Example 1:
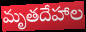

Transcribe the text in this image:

మృతదేహాల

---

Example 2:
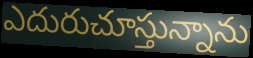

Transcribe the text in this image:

ఎదురుచూస్తున్నాను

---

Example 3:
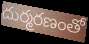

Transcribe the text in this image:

దుర్మరణంతో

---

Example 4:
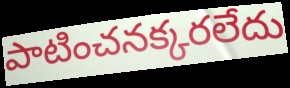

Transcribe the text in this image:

పాటించనక్కరలేదు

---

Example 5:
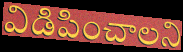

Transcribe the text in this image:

విడిపించాలని